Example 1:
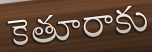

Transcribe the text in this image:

కెతూరాకు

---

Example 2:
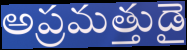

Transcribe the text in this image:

అప్రమత్తుడై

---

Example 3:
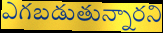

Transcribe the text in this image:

ఎగబడుతున్నారని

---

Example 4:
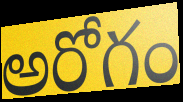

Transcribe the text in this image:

అరోగం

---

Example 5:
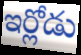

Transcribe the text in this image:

ఇర్లోడు